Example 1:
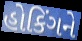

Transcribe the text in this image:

હોકિંગને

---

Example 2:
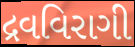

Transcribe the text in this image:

દ્રવવિરાગી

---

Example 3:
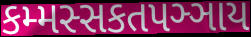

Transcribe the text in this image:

કમ્મસ્સકતપઞ્ઞાય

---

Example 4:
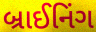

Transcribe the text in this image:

બ્રાઈનિંગ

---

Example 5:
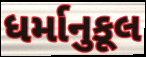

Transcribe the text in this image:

ધર્માનુકૂલ